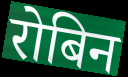
रोबिन